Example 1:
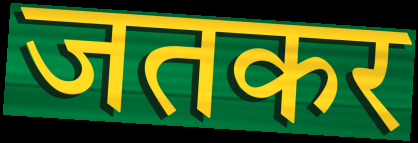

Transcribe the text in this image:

जतकर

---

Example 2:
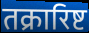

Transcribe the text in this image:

तक्रारिष्ट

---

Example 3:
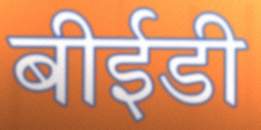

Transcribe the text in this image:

बीईडी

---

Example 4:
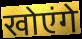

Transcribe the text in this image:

खोएंगे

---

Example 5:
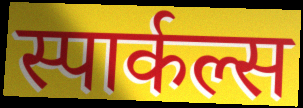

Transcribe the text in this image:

स्पार्कल्स